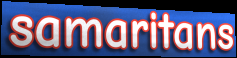
samaritans